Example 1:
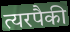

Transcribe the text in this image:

त्यरपैकी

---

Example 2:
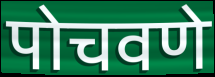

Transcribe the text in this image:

पोचवणे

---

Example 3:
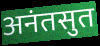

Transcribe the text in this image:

अनंतसुत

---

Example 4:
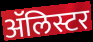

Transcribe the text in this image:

ॲलिस्टर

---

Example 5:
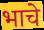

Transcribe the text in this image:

भाचे